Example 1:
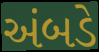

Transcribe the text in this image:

અંબડે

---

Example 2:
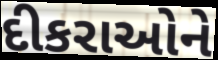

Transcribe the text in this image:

દીકરાઓને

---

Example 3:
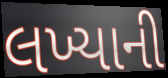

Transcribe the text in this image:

લખ્યાની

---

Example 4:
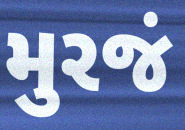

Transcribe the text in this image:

મુરજં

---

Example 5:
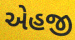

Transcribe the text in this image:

એહજી